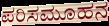
ಪರಿಸಮೂಹನ